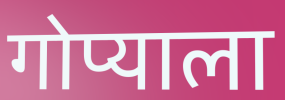
गोप्याला